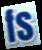
fs